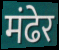
मंढेर